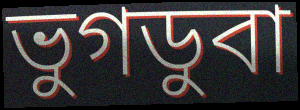
ভুগডুবা